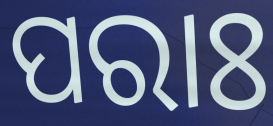
ପରାଃ